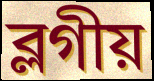
ব্লগীয়